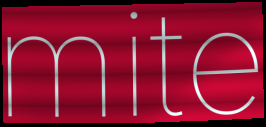
mite